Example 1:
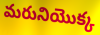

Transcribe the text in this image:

మరునియొక్క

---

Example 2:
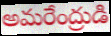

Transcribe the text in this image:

అమరేంద్రుడి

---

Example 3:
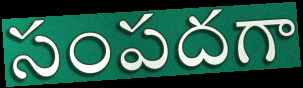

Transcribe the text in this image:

సంపదగా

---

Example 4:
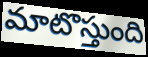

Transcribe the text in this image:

మాటొస్తుంది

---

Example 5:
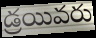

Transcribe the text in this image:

డ్రయివరు